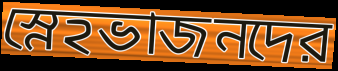
স্নেহভাজনদের